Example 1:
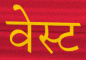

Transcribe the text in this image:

वेस्ट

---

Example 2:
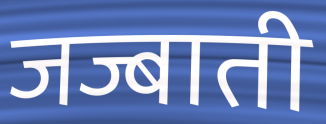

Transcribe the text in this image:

जज्बाती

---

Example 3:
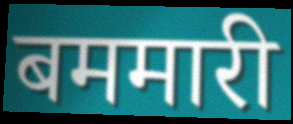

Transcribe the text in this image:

बममारी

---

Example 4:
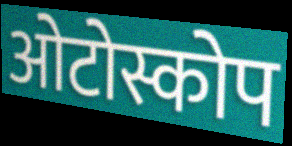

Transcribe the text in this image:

ओटोस्कोप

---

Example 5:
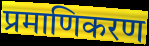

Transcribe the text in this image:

प्रमाणिकरण